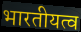
भारतीयत्व